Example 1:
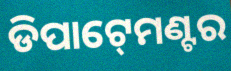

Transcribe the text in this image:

ଡିପାଟ୍‍ମେଣ୍ଟର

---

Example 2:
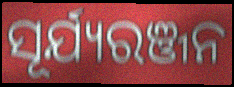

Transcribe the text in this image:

ସୂର୍ଯ୍ୟରଞ୍ଜନ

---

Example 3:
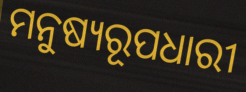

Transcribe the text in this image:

ମନୁଷ୍ୟରୂପଧାରୀ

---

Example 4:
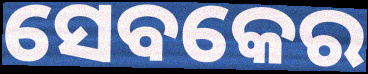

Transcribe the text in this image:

ସେବକେର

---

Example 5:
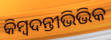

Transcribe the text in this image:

କିମ୍ବଦନ୍ତୀଭିଭିକ